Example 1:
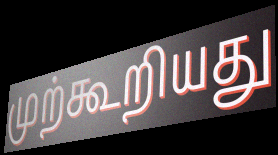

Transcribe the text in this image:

முற்கூறியது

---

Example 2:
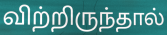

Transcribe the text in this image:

விற்றிருந்தால்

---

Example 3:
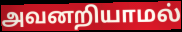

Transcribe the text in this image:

அவனறியாமல்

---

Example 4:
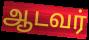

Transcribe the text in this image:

ஆடவர்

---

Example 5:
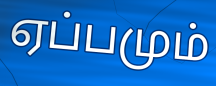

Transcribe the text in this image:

ஏப்பமும்